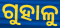
ଗୁହାଳୁ